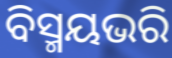
ବିସ୍ମୟଭରି